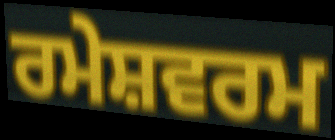
ਰਮੇਸ਼ਵਰਮ